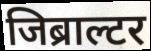
जिब्राल्टर